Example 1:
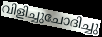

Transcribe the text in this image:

വിളിച്ചുചോദിച്ചു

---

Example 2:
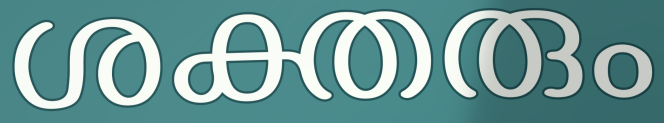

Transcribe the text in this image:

ശക്തരും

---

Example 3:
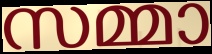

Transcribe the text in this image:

സമ്മാ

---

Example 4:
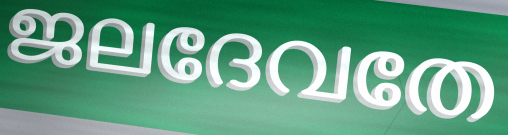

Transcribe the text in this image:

ജലദേവതേ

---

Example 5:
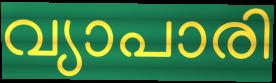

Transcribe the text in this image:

വ്യാപാരി